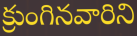
క్రుంగినవారిని